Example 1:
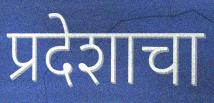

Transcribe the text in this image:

प्रदेशाचा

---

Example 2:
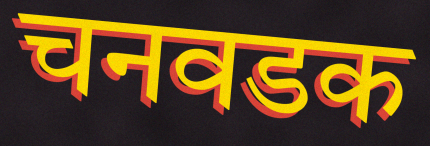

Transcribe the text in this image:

चनवडक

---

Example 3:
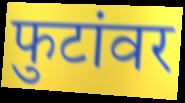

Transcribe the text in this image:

फुटांवर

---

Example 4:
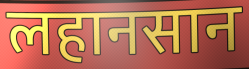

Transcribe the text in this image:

लहानसान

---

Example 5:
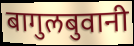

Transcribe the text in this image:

बागुलबुवानी